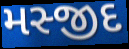
મસ્જીદ